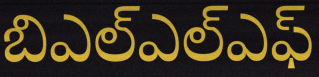
బిఎల్ఎల్ఎఫ్